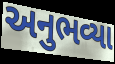
અનુભવ્યા